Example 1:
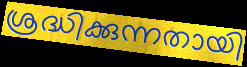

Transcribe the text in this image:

ശ്രദ്ധിക്കുന്നതായി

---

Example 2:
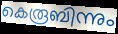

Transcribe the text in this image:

കെരൂബിന്നും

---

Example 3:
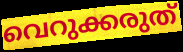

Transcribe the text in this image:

വെറുക്കരുത്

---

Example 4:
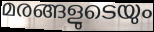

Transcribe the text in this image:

മരങ്ങളുടെയും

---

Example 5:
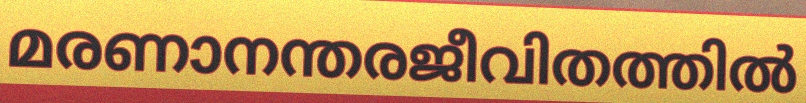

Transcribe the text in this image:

മരണാനന്തരജീവിതത്തിൽ